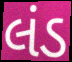
લંડ